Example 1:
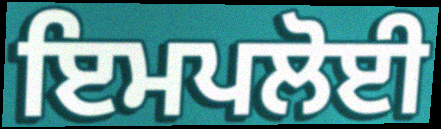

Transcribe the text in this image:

ਇਮਪਲੋਈ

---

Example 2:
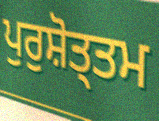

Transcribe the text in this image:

ਪੁਰੁਸ਼ੋਤ੍ਤਮ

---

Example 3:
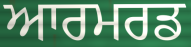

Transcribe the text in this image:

ਆਰਮਰਡ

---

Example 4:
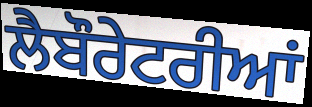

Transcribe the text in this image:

ਲੈਬੌਰੇਟਰੀਆਂ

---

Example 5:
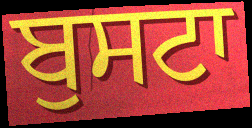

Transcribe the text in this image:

ਬੁਸਟਾ